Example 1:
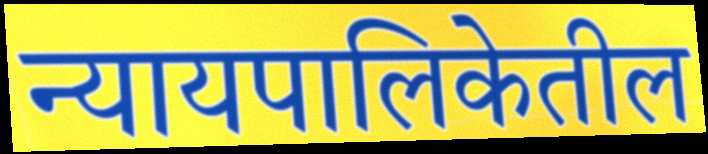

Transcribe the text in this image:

न्यायपालिकेतील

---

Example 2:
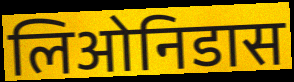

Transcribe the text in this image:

लिओनिडास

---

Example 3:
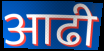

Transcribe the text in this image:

आढी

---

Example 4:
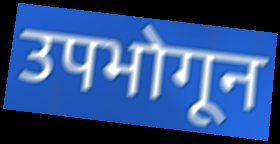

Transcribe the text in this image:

उपभोगून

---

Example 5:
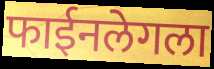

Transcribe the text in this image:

फाईनलेगला